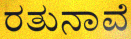
ರತುನಾವೆ